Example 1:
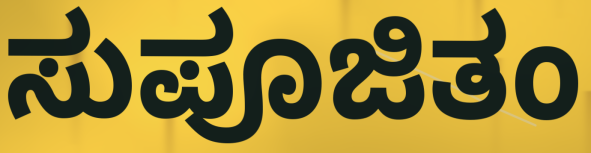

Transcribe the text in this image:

ಸುಪೂಜಿತಂ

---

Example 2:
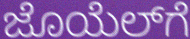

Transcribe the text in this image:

ಜೊಯೆಲ್‌ಗೆ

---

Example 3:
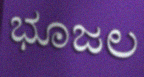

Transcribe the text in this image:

ಭೂಜಲ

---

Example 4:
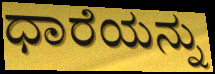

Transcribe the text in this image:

ಧಾರೆಯನ್ನು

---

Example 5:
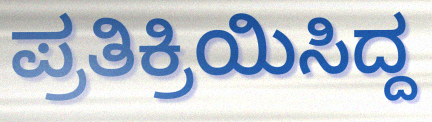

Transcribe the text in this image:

ಪ್ರತಿಕ್ರಿಯಿಸಿದ್ದ